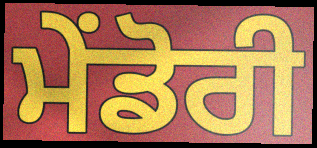
ਮੇਂਡੋਰੀ